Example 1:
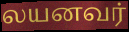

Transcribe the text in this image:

லயனவர்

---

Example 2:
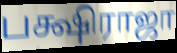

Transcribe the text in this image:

பக்ஷிராஜா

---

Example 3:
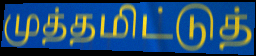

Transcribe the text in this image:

முத்தமிட்டுத்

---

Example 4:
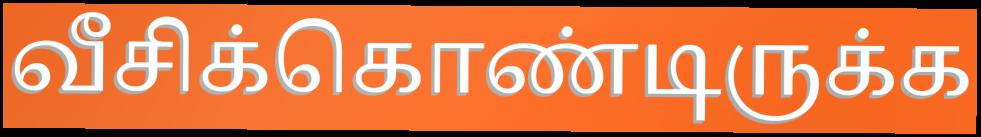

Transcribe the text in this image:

வீசிக்கொண்டிருக்க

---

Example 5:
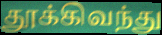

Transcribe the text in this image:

தூக்கிவந்து